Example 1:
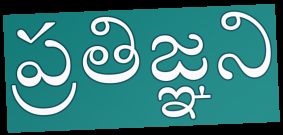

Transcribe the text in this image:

ప్రతిజ్ఞని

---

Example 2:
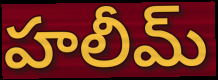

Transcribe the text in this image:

హలీమ్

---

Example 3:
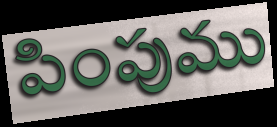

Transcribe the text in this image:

పింపుము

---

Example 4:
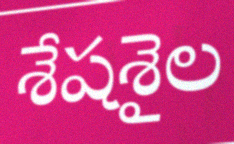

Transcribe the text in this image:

శేషశైల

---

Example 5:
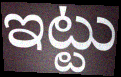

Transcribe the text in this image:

ఇట్టు